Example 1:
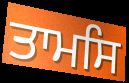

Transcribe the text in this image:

ਤਾਮਸਿ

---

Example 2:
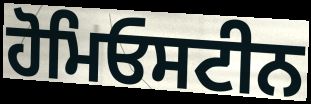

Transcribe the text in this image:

ਹੋਮਿਓਸਟੀਨ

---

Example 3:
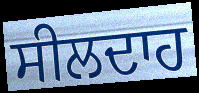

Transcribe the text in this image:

ਸੀਲਦਾਹ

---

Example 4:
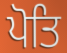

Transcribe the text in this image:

ਪੋਤਿ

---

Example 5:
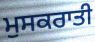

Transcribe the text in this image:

ਮੁਸਕਰਾਤੀ